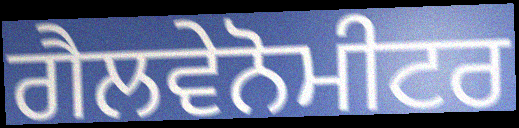
ਗੈਲਵੇਨੋਮੀਟਰ